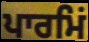
ਪਾਰਮਿਂ